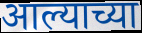
आल्याच्या